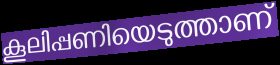
കൂലിപ്പണിയെടുത്താണ്